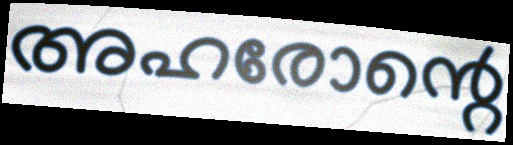
അഹരോന്റെ